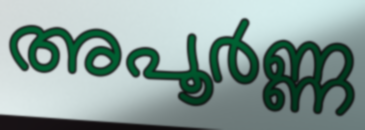
അപൂർണ്ണ